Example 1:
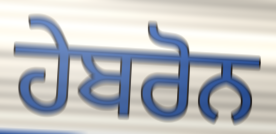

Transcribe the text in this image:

ਹੇਬਰੋਨ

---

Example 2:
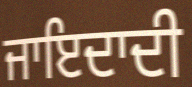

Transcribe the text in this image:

ਜਾਇਦਾਦੀ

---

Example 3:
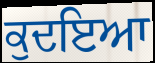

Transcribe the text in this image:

ਕੁਦਇਆ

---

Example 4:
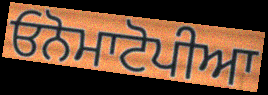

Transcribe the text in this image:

ਓਨੋਮਾਟੋਪੀਆ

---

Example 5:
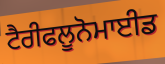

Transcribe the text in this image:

ਟੈਰੀਫਲੂਨੋਮਾਈਡ